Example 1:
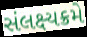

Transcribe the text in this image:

સંલક્ષ્યક્રમે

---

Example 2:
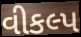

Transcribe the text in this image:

વીકલ્પ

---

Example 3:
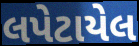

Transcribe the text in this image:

લપેટાયેલ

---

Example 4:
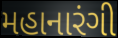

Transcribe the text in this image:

મહાનારંગી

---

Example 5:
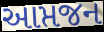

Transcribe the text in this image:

આપ્તજન